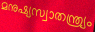
മനുഷ്യസ്വാതന്ത്ര്യം